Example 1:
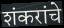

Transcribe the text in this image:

शंकरांचे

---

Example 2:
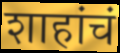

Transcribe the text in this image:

शाहांचं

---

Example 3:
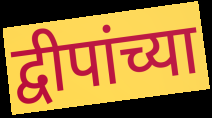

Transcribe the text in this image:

द्वीपांच्या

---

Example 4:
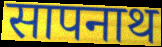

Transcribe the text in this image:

सापनाथ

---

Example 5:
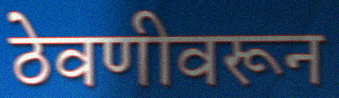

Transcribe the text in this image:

ठेवणीवरून